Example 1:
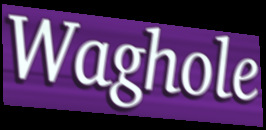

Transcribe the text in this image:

Waghole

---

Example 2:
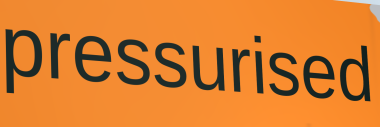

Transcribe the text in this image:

pressurised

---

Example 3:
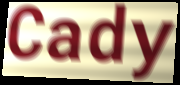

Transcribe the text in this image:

Cady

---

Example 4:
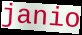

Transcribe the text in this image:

janio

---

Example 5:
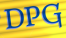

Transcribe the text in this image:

DPG